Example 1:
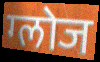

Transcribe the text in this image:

ग्लोज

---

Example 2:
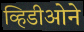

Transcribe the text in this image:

व्हिडीओने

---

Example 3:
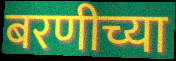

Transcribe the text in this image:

बरणीच्या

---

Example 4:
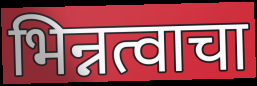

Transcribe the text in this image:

भिन्नत्वाचा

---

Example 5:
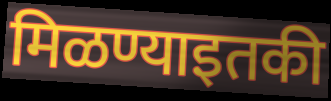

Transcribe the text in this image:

मिळण्याइतकी